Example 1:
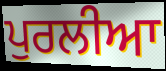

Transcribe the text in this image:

ਪੁਰਲੀਆ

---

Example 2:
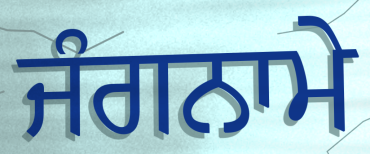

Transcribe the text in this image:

ਜੰਗਨਾਮੇ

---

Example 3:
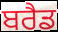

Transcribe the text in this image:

ਬਰੈਡ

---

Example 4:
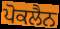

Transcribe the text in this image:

ਪੋਕਲੈਨ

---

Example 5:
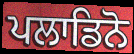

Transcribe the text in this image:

ਪਲਾਡਿਨੋ